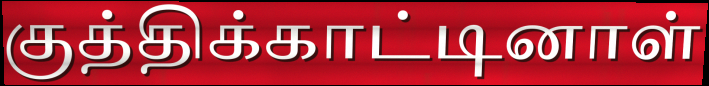
குத்திக்காட்டினாள்